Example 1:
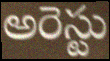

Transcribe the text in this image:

అరెస్టు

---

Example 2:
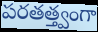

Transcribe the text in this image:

పరతత్త్వంగా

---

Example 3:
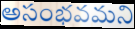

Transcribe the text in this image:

అసంభవమని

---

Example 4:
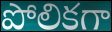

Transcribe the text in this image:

పోలికగా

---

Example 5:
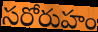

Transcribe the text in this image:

సరోరుహం